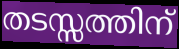
തടസ്സത്തിന്